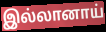
இல்லானாய்